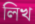
লিখ